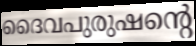
ദൈവപുരുഷന്റെ